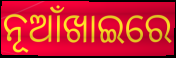
ନୂଆଁଖାଇରେ